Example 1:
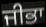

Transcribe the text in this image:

ਜੀਭਾ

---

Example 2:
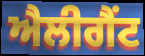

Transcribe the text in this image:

ਐਲੀਗੈਂਟ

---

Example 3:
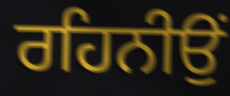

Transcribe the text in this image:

ਰਹਿਨੀਉਂ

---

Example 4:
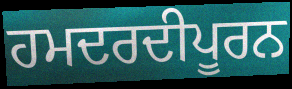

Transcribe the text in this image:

ਹਮਦਰਦੀਪੂਰਨ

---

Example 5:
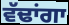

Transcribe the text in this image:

ਵੱਢਾਂਗਾ